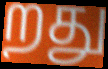
றது